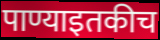
पाण्याइतकीच